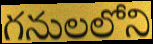
గనులలోని